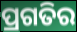
ପ୍ରଗତିର